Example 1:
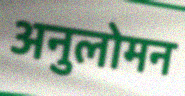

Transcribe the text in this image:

अनुलोमन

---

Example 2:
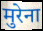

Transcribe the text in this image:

मुरेना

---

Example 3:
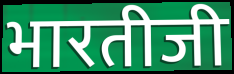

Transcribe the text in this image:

भारतीजी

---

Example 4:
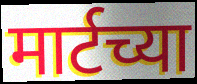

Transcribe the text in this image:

मार्टच्या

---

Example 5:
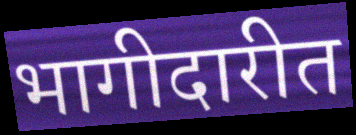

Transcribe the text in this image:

भागीदारीत